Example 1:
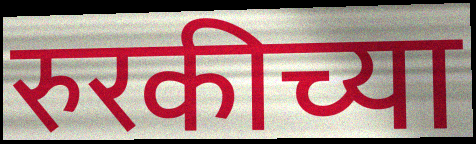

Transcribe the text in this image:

रुरकीच्या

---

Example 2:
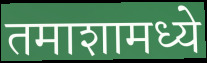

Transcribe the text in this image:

तमाशामध्ये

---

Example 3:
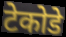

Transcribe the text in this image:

टेकोडे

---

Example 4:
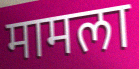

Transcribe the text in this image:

मामला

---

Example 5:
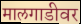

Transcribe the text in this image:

मालगाडीवर